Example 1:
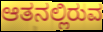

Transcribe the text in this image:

ಆತನಲ್ಲಿರುವ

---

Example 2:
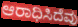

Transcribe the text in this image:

ಆರಾಧಿಸಿದೆವು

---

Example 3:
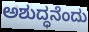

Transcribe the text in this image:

ಅಶುದ್ಧನೆಂದು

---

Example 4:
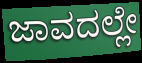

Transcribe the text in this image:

ಜಾವದಲ್ಲೇ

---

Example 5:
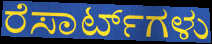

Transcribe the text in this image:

ರೆಸಾರ್ಟ್‌ಗಳು